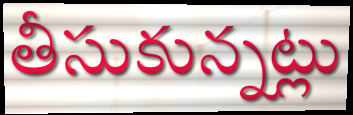
తీసుకున్నట్లు